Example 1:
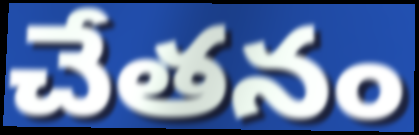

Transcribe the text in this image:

చేతనం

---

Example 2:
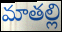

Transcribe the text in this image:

మాతల్లి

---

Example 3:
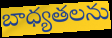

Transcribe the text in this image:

బాధ్యతలను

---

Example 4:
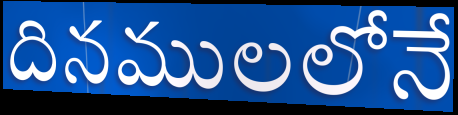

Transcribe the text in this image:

దినములలోనే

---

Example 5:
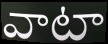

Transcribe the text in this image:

వాటా